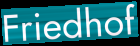
Friedhof